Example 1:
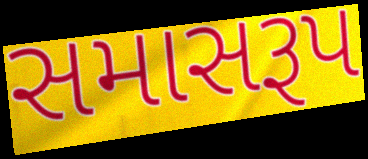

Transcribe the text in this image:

સમાસરૂપ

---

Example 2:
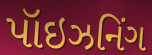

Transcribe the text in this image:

પૉઇઝનિંગ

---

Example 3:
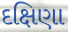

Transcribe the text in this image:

દક્ષિણા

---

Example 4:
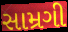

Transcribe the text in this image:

સામ્રગી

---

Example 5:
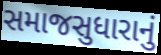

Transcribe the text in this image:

સમાજસુધારાનું